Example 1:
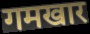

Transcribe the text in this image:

गमखार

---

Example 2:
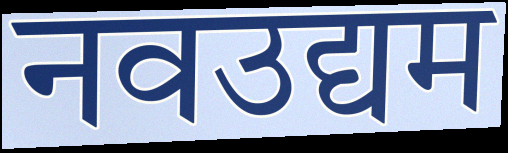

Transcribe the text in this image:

नवउद्यम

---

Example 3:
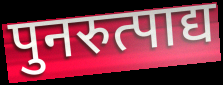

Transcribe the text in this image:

पुनरुत्पाद्य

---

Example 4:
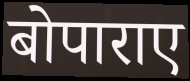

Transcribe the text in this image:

बोपाराए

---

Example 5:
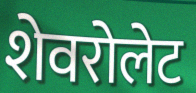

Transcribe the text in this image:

शेवरोलेट